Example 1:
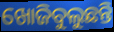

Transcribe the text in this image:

ଖୋଜିବୁଲୁଛନ୍ତି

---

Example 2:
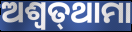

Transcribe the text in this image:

ଅଶ୍ବତ୍‌ଥାମା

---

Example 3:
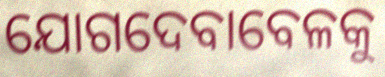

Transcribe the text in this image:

ଯୋଗଦେବାବେଳକୁ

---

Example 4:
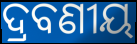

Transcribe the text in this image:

ଦ୍ରବଣୀୟ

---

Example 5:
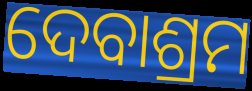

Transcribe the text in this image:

ଦେବାଶ୍ରମ